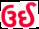
ઉઈ